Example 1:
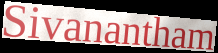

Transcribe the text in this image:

Sivanantham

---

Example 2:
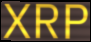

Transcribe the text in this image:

XRP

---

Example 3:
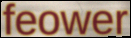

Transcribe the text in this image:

feower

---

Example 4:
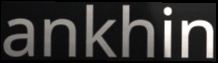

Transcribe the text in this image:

ankhin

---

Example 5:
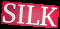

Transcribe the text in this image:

SILK